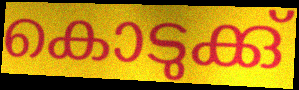
കൊടുക്കു്